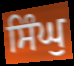
ਸਿੰਘੁ